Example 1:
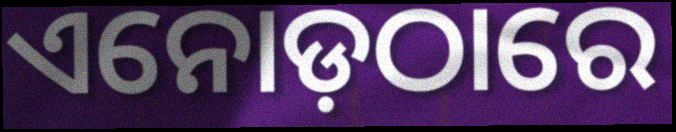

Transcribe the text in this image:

ଏନୋଡ଼ଠାରେ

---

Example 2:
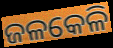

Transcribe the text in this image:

ଜଳକେଳି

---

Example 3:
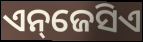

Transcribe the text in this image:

ଏନ୍‌ଜେସିଏ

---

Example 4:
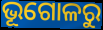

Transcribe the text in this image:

ଭୂଗୋଳରୁ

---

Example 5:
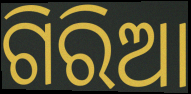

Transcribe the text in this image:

ଗିରିଆ